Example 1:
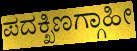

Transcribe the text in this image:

ಪದಕ್ಖಿಣಗ್ಗಾಹೀ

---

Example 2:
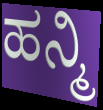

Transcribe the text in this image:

ಹನ್ಮಿ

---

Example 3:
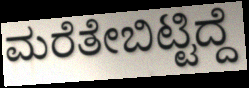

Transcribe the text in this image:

ಮರೆತೇಬಿಟ್ಟಿದ್ದೆ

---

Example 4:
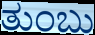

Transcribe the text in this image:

ತುಂಬು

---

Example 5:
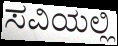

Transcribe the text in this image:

ಸವಿಯಲ್ಲಿ